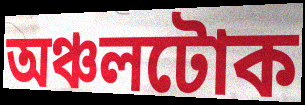
অঞ্চলটোক